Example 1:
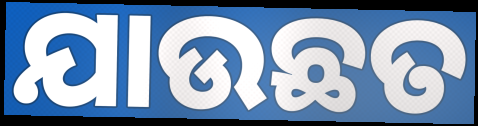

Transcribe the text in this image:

ଯାଉଛତ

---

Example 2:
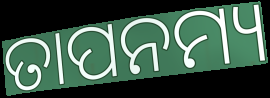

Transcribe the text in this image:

ତାପନମ୍ୟ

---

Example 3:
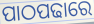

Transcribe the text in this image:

ପାଠପଢାରେ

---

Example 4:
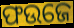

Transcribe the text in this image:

ଫଉଜେ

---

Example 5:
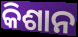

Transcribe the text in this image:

କିଶାନ